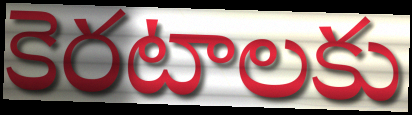
కెరటాలకు